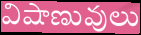
విషాణువులు